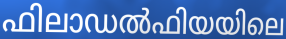
ഫിലാഡൽഫിയയിലെ